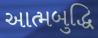
આત્મબુદ્ધિ